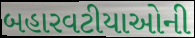
બહારવટીયાઓની